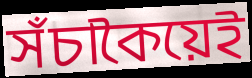
সঁচাকৈয়েই